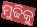
ମୁଢିକୁ